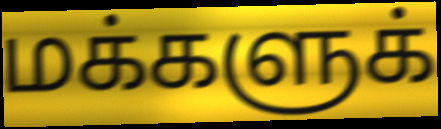
மக்களுக்